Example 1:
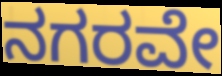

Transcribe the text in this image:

ನಗರವೇ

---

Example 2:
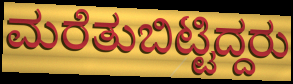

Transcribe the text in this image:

ಮರೆತುಬಿಟ್ಟಿದ್ದರು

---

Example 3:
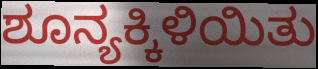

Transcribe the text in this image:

ಶೂನ್ಯಕ್ಕಿಳಿಯಿತು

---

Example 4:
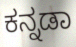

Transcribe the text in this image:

ಕನ್ನಡಾ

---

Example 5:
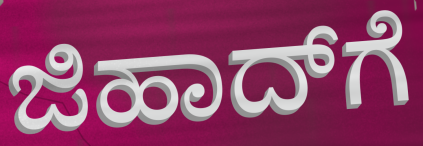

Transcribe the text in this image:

ಜಿಹಾದ್‌ಗೆ